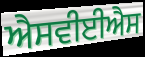
ਐਸਵੀਈਐਸ